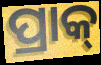
ପ୍ରାକ୍